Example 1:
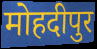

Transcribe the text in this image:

मोहदीपुर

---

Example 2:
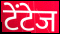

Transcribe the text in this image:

टेंटेज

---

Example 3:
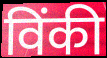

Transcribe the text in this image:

विंकी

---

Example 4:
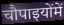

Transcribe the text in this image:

चौपाइयोंमें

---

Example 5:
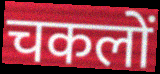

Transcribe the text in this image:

चकलों